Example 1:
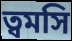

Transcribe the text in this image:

ত্বমসি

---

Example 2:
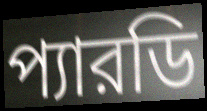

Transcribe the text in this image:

প্যারডি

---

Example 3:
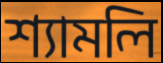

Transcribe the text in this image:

শ্যামলি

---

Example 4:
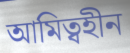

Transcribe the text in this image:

আমিত্বহীন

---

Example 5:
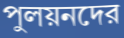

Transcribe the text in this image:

পুলয়নদের